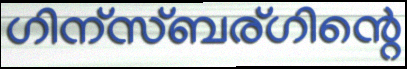
ഗിന്സ്ബര്ഗിന്റെ